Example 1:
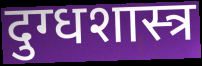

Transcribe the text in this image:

दुग्धशास्त्र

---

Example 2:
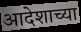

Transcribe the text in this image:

आदेशाच्या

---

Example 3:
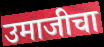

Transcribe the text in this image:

उमाजीचा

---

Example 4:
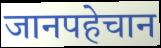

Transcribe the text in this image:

जानपहेचान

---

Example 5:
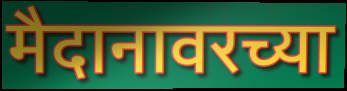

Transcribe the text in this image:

मैदानावरच्या